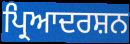
ਪ੍ਰਿਆਦਰਸ਼ਨ